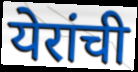
येरांची